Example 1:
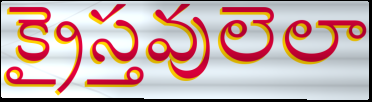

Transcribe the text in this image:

క్రైస్తవులెలా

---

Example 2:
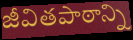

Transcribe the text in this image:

జీవితపాఠాన్ని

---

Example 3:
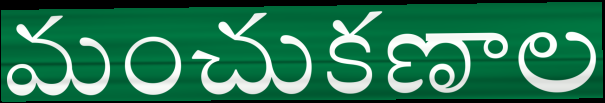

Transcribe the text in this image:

మంచుకణాల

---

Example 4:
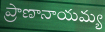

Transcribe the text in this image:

ప్రాణానాయమ్య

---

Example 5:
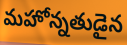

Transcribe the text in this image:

మహోన్నతుడైన